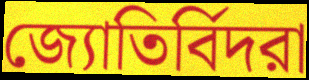
জ্যোতির্বিদরা